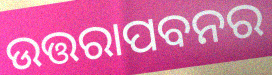
ଉତ୍ତରାପବନର